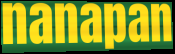
nanapan